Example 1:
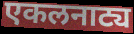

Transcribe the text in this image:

एकलनाट्य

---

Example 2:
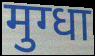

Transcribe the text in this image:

मुग्धा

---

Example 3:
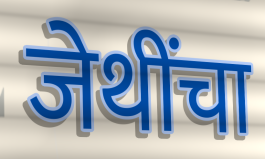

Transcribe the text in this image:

जेथींचा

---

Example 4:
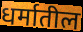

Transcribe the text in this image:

धर्मातील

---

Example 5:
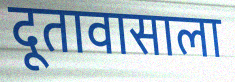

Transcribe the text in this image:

दूतावासाला